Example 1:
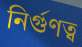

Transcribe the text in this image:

নির্গুণত্ব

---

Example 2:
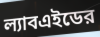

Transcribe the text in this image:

ল্যাবএইডের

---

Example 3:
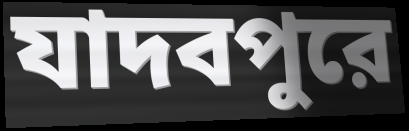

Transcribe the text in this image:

যাদবপুরে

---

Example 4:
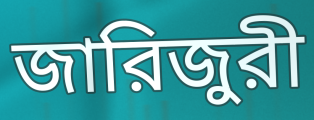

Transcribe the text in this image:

জারিজুরী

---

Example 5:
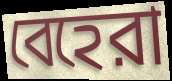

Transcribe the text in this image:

বেহেরা